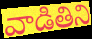
వాడితిని